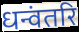
धन्वंतरि